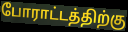
போராட்டத்திற்கு